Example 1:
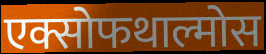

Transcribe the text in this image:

एक्सोफथाल्मोस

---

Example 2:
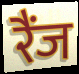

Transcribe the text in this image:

रैंज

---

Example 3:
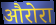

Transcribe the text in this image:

औरोरा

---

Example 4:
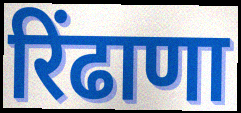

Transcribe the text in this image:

रिंढाणा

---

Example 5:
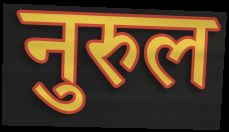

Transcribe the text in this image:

नुरुल